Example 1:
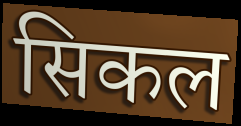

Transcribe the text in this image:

सिकल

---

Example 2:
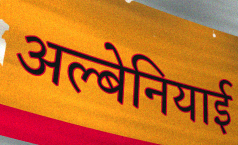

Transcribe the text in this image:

अल्बेनियाई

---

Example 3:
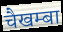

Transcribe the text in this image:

चैखम्बा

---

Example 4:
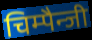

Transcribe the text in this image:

चिम्पैन्जी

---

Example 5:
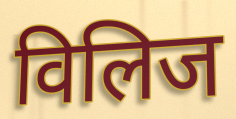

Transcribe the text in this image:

विलिज